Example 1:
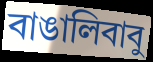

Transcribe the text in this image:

বাঙালিবাবু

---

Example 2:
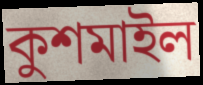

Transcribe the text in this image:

কুশমাইল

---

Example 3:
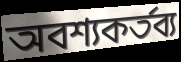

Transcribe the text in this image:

অবশ্যকর্তব্য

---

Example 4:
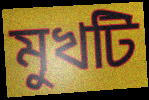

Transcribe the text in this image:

মুখটি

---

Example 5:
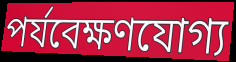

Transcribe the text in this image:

পর্যবেক্ষণযোগ্য